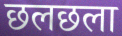
छलछला